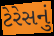
ટેરેસનું